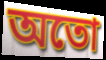
অতো